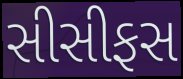
સીસીફસ